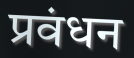
प्रवंधन